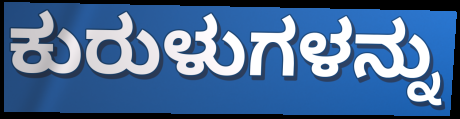
ಕುರುಳುಗಳನ್ನು